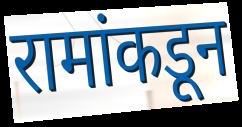
रामांकडून